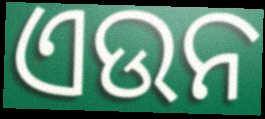
ଏଉନ